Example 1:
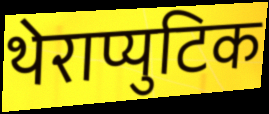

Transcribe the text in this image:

थेराप्युटिक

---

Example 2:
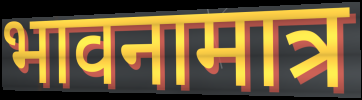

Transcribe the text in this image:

भावनामात्र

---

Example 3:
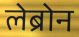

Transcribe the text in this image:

लेब्रोन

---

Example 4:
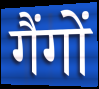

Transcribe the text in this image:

गैंगों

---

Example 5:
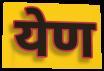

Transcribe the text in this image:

येण